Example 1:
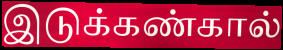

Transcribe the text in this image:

இடுக்கண்கால்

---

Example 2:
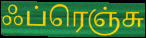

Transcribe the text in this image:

ஃப்ரெஞ்சு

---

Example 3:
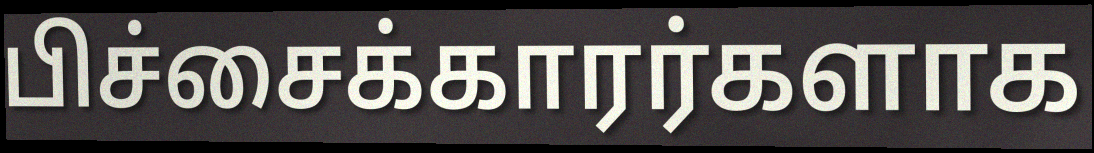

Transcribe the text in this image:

பிச்சைக்காரர்களாக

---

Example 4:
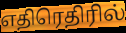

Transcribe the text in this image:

எதிரெதிரில்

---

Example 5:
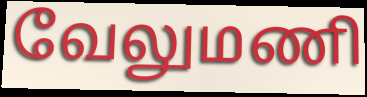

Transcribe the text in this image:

வேலுமணி